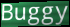
Buggy